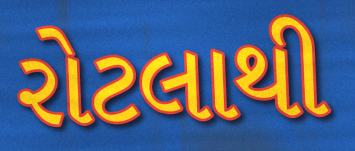
રોટલાથી